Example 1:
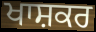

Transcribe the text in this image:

ਖਾਸ਼ਕਰ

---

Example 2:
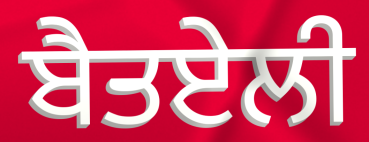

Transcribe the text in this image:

ਬੈਤਏਲੀ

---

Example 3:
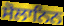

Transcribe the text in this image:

ਸੋਲਾਨਿਨ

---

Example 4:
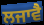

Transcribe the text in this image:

ਲਜਾਵੈ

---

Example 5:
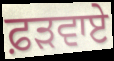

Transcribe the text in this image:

ਫ਼ੜਵਾਏ